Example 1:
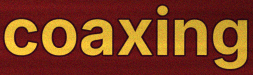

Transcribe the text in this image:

coaxing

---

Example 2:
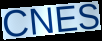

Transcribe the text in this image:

CNES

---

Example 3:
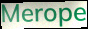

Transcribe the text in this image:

Merope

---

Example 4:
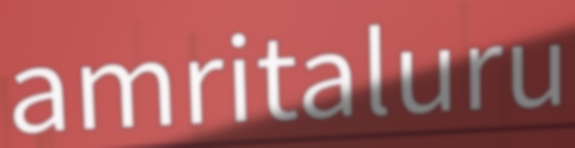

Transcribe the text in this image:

amritaluru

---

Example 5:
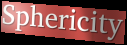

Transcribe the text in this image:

Sphericity